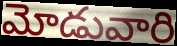
మోడువారి